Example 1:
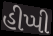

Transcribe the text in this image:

હીપ્પી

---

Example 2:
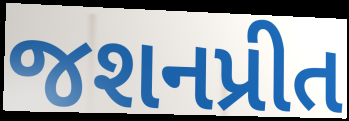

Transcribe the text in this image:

જશનપ્રીત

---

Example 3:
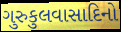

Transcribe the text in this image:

ગુરુકુલવાસાદિનો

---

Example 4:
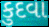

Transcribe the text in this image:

કુદવા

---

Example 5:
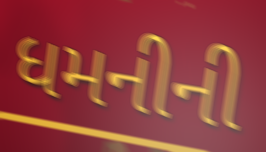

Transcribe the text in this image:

ધમનીની